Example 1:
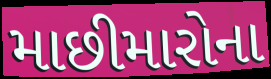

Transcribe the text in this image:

માછીમારોના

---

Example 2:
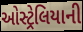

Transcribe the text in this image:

ઓસ્ટ્રેલિયાની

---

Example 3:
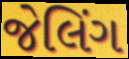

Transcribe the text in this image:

જેલિંગ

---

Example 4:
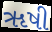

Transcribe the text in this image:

ૠષી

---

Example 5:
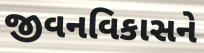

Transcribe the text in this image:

જીવનવિકાસને